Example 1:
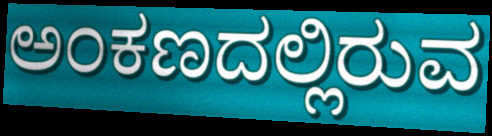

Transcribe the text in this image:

ಅಂಕಣದಲ್ಲಿರುವ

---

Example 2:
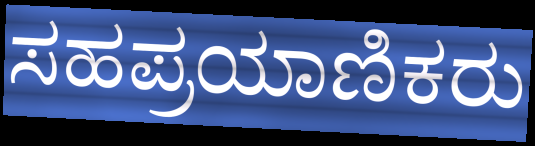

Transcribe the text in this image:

ಸಹಪ್ರಯಾಣಿಕರು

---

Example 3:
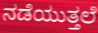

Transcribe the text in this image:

ನಡೆಯುತ್ತಲೆ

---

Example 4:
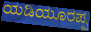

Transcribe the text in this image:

ಯಡಿಯೂರಪ್ಪ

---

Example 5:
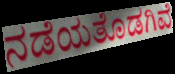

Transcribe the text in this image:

ನಡೆಯತೊಡಗಿವೆ